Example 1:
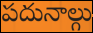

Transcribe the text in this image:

పదునాల్గు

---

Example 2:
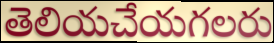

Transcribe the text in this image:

తెలియచేయగలరు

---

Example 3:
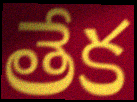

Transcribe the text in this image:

తేక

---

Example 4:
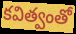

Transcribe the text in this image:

కవిత్వంతో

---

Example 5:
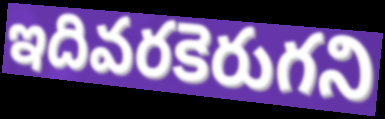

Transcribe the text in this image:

ఇదివరకెరుగని